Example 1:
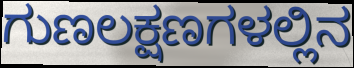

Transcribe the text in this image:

ಗುಣಲಕ್ಷಣಗಳಲ್ಲಿನ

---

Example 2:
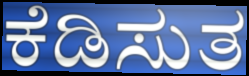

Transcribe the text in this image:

ಕೆಡಿಸುತ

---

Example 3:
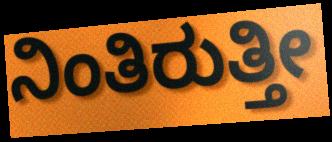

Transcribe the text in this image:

ನಿಂತಿರುತ್ತೀ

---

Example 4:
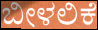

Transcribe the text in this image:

ಬೀಳಲಿಕೆ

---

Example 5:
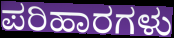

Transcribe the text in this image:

ಪರಿಹಾರಗಳು